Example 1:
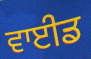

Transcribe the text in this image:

ਵਾਈਡ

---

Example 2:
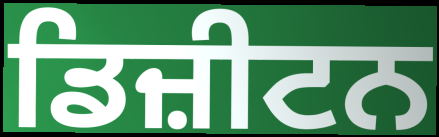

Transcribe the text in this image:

ਡਿਜ਼ੀਟਨ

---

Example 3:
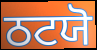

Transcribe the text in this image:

ਠਟਯੋ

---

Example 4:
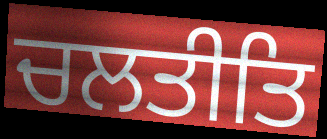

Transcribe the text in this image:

ਚਲਤੀਤਿ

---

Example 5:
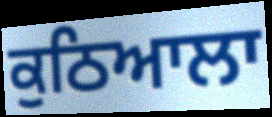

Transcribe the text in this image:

ਕੁਠਿਆਲਾ